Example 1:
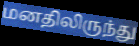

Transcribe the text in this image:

மனதிலிருந்து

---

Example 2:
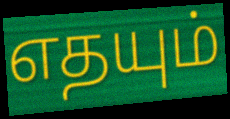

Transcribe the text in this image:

எதயும்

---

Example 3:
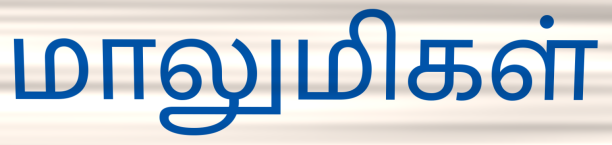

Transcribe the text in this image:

மாலுமிகள்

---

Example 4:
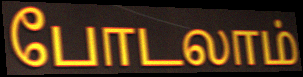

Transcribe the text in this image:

போடலாம்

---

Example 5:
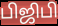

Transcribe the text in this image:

பிஜிபி